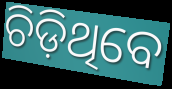
ଚିଡ଼ିଥିବେ